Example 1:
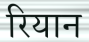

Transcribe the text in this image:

रियान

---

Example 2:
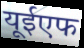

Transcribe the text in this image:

यूईएफ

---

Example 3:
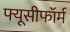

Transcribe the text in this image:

फ्यूसीफॉर्म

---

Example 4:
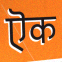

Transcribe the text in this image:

ऎक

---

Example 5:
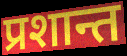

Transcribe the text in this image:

प्रशान्त